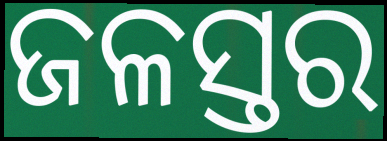
ଜଳସ୍ତର